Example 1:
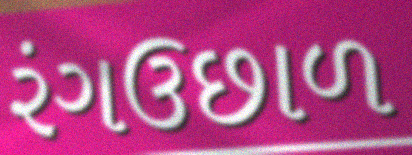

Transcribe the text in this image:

રંગઉછાળ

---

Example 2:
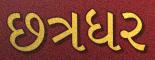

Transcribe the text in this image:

છત્રધર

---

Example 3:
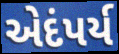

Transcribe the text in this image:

એદંપર્ય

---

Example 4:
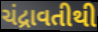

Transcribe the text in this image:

ચંદ્રાવતીથી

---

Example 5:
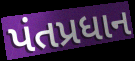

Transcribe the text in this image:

પંતપ્રધાન